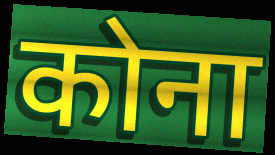
कोना